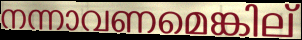
നന്നാവണമെങ്കില്